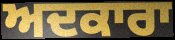
ਅਦਕਾਰਾ